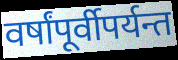
वर्षांपूर्वीपर्यन्त